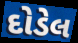
દોડેલ